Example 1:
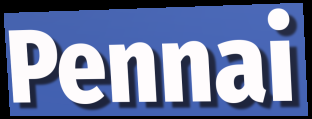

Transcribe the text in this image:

Pennai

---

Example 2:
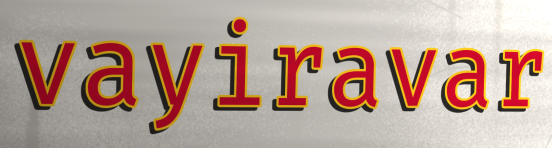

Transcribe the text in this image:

vayiravar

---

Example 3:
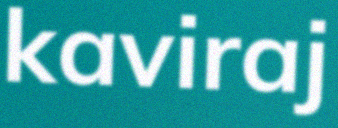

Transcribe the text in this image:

kaviraj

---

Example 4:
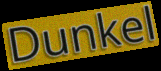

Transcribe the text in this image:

Dunkel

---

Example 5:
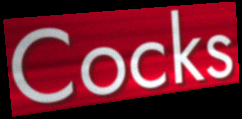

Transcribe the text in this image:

Cocks